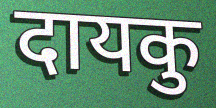
दायकु